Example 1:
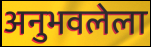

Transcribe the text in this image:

अनुभवलेला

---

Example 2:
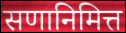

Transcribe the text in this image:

सणानिमित्त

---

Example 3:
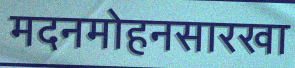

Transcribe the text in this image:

मदनमोहनसारखा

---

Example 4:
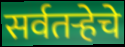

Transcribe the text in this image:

सर्वतऱ्हेचे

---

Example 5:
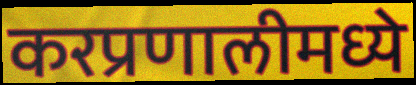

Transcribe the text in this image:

करप्रणालीमध्ये